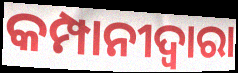
କମ୍ପାନୀଦ୍ୱାରା